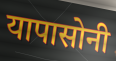
यापासोनी